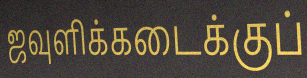
ஜவுளிக்கடைக்குப்